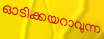
ഓടിക്കയറാവുന്ന